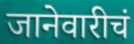
जानेवारीचं